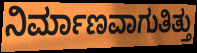
ನಿರ್ಮಾಣವಾಗುತಿತ್ತು